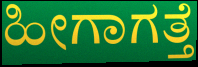
ಹೀಗಾಗತ್ತೆ